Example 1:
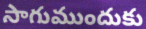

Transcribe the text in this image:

సాగుముందుకు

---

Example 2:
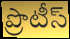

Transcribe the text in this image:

ప్రొటీస్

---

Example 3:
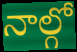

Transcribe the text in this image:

నాల్గో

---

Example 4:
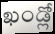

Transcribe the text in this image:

ఖండ్లో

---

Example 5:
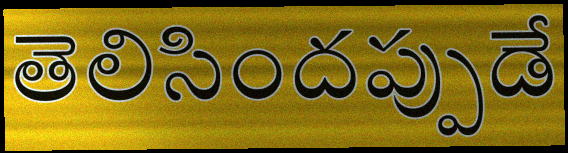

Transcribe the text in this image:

తెలిసిందప్పుడే